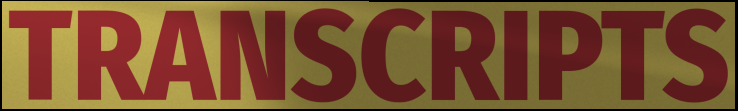
TRANSCRIPTS